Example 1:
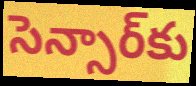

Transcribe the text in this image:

సెన్సార్‌కు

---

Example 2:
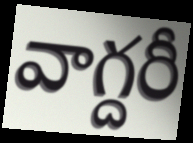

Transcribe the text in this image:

వాగ్దరీ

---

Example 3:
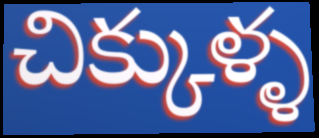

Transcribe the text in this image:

చిక్కుళ్ళ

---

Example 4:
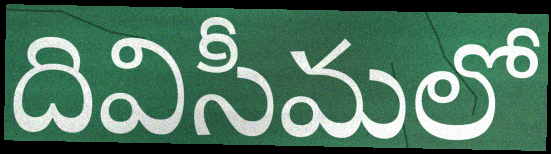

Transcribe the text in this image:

దివిసీమలో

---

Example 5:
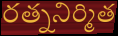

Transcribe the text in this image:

రత్ననిర్మిత